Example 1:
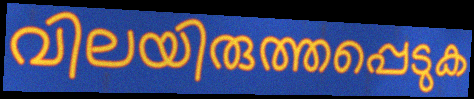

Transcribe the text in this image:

വിലയിരുത്തപ്പെടുക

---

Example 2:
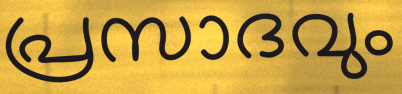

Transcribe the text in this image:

പ്രസാദവും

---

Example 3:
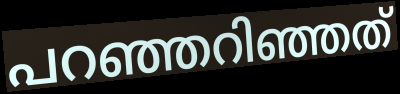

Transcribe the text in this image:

പറഞ്ഞറിഞ്ഞത്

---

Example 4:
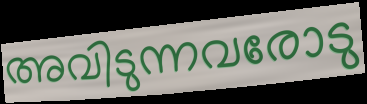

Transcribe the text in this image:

അവിടുന്നവരോടു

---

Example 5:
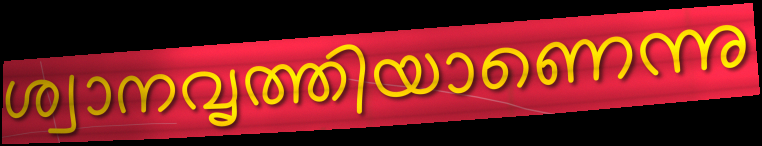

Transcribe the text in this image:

ശ്വാനവൃത്തിയാണെന്നു